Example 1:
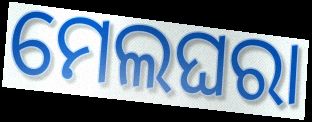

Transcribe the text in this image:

ମେଲଘରା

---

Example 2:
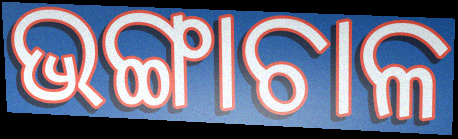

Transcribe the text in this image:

ଭଙ୍ଗାଚାଳ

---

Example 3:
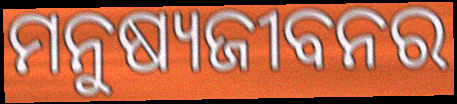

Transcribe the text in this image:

ମନୁଷ୍ୟଜୀବନର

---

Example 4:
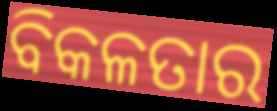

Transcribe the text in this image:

ବିକଳତାର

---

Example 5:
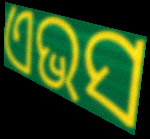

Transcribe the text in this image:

ଏଭସ